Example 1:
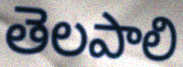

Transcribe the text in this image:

తెలపాలి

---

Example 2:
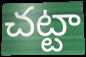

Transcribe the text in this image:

చట్టా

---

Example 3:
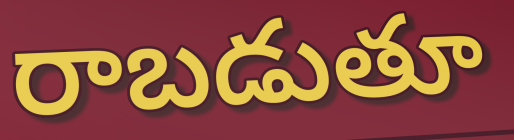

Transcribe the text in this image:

రాబడుతూ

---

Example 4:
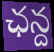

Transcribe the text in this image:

ఛన్ద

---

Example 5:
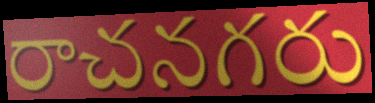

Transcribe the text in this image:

రాచనగరు